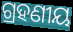
ଗ୍ରହଣୀୟ